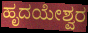
ಹೃದಯೇಶ್ವರ